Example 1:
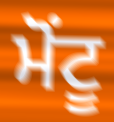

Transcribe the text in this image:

ਮੋਂਟੂ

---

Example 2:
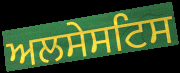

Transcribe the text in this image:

ਅਲਸੇਸਟਿਸ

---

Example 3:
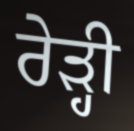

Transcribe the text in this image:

ਰੇੜ੍ਹੀ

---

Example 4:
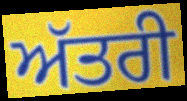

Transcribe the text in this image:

ਅੱਤਰੀ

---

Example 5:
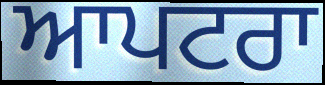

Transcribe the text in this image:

ਆਪਟਰਾ